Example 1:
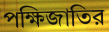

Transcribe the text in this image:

পক্ষিজাতির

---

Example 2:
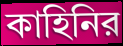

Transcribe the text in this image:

কাহিনির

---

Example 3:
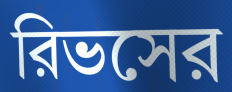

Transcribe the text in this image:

রিভসের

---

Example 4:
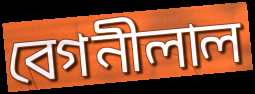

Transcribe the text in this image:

বেগনীলাল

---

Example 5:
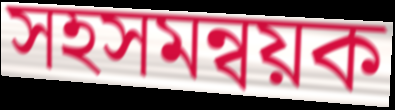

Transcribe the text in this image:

সহসমন্বয়ক